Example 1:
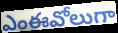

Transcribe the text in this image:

ఎంఈవోలుగా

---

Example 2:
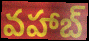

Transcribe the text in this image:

వహాబ్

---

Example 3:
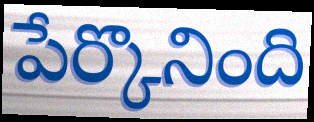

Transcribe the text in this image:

పేర్కొనింది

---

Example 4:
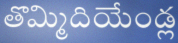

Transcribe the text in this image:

తొమ్మిదియేండ్ల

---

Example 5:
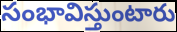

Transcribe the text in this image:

సంభావిస్తుంటారు